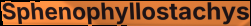
Sphenophyllostachys